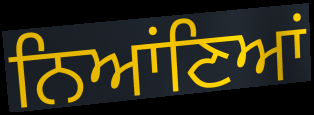
ਨਿਆਂਣਿਆਂ